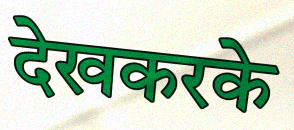
देखकरके